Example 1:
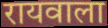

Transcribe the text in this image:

रायवाला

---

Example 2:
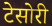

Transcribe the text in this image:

टेसोरी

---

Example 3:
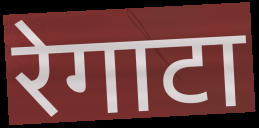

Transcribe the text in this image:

रेगाटा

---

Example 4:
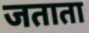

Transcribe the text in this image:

जताता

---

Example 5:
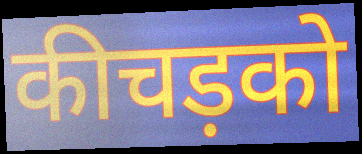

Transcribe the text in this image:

कीचड़को